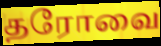
தரோவை